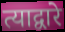
त्याद्वारे